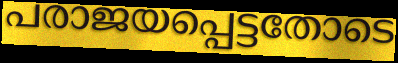
പരാജയപ്പെട്ടതോടെ